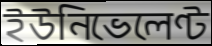
ইউনিভেলেণ্ট